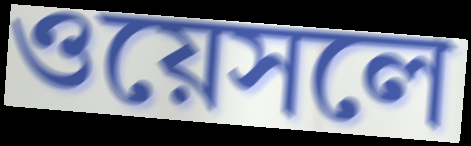
ওয়েসলে